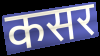
कसर